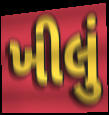
ખીલું